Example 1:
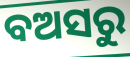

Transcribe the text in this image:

ବଅସରୁ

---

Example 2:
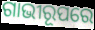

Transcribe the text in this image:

ଗାଭୀରୂପରେ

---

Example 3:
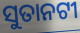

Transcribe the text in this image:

ସୁତାନଟୀ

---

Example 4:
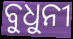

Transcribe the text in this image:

ବୁଧୁନୀ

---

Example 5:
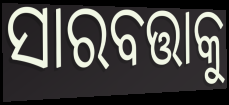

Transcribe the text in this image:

ସାରବତ୍ତାକୁ